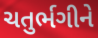
ચતુર્ભગીને